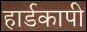
हार्डकापी